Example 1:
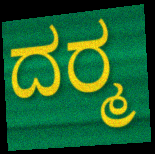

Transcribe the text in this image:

ದರ‍್ಮ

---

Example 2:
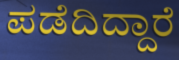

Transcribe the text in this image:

ಪಡೆದಿದ್ದಾರೆ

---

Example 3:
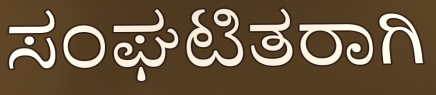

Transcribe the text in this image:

ಸಂಘಟಿತರಾಗಿ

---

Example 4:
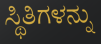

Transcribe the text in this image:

ಸ್ಥಿತಿಗಳನ್ನು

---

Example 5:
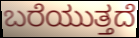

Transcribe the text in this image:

ಬರೆಯುತ್ತದೆ